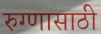
रुग्णासाठी